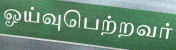
ஓய்வுபெற்றவர்